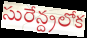
సురేన్ద్రలోక